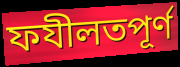
ফযীলতপূর্ণ